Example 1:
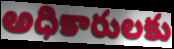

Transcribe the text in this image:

అధికారులకు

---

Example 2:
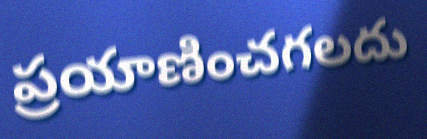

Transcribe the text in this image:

ప్రయాణించగలదు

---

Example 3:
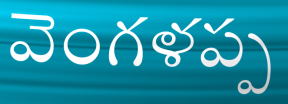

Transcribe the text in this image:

వెంగళప్ప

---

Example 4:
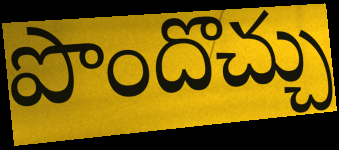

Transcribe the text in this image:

పొందొచ్చు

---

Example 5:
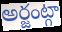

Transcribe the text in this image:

అర్జంట్గా